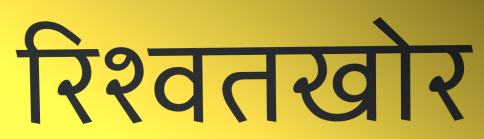
रिश्वतखोर